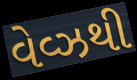
વેવ્ઝથી